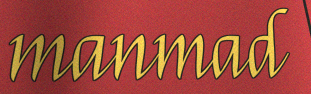
manmad